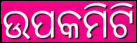
ଉପକମିଟି